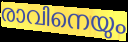
രാവിനെയും